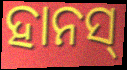
ହାନସ୍